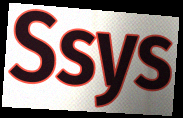
Ssys